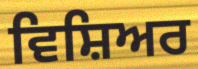
ਵਿਸ਼ਿਅਰ